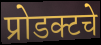
प्रोडक्टचे